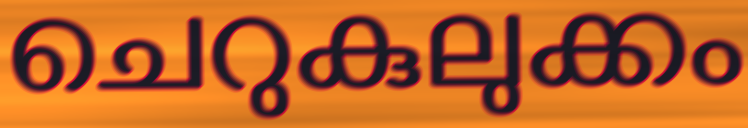
ചെറുകുലുക്കം